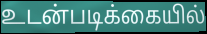
உடன்படிக்கையில்